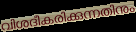
വിശദീകരിക്കുന്നതിനും